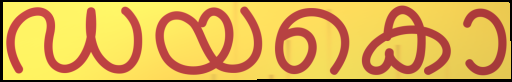
ഡയകൊ